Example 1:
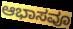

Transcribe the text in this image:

ಆಭಾಸವೂ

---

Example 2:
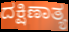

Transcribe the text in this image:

ದಕ್ಷಿಣಾತ್ಯ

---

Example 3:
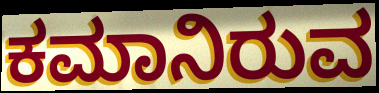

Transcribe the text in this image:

ಕಮಾನಿರುವ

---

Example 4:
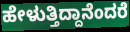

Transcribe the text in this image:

ಹೇಳುತ್ತಿದ್ದಾನೆಂದರೆ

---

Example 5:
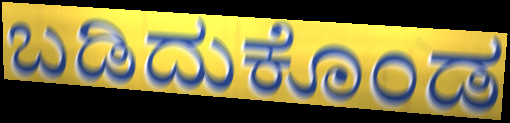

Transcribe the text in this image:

ಬಡಿದುಕೊಂಡ